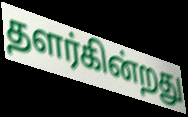
தளர்கின்றது